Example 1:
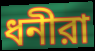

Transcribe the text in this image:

ধনীরা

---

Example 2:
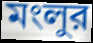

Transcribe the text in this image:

মংলুর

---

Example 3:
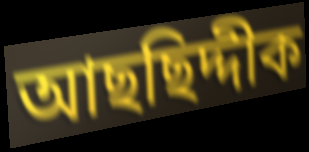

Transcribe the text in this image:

আছছিদ্দীক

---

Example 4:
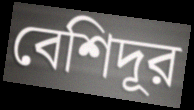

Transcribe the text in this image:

বেশিদূর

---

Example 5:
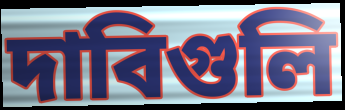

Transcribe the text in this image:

দাবিগুলি